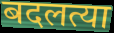
बदलत्या